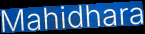
Mahidhara